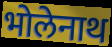
भोलेनाथ